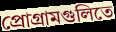
প্রোগ্রামগুলিতে